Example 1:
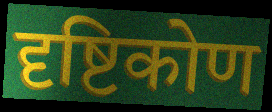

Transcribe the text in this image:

दृष्टिकोण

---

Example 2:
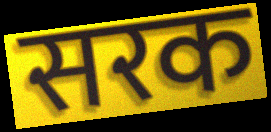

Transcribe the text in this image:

सरक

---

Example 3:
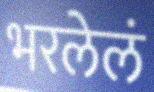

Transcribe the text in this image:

भरलेलं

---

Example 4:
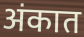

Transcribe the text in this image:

अंकात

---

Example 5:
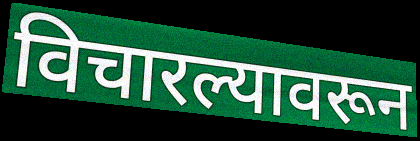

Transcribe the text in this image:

विचारल्यावरून